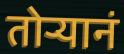
तोऱ्यानं